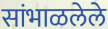
सांभाळलेले